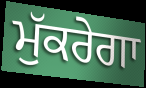
ਮੁੱਕਰੇਗਾ